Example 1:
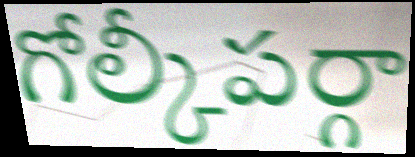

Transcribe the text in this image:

గోల్కీపర్గా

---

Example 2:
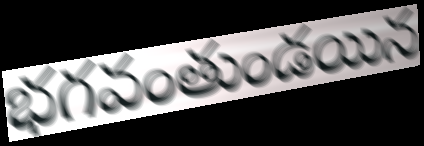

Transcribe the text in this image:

భగవంతుండయిన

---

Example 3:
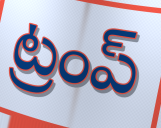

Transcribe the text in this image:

ట్రంప్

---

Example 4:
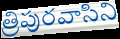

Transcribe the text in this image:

త్రిపురవాసిని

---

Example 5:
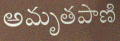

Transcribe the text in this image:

అమృతపాణి